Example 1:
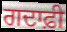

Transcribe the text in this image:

ਗਦਾਫ਼ੀ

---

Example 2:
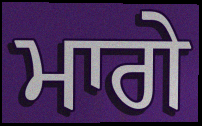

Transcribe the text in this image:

ਮਾਗੇ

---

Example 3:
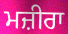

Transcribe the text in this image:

ਮਜ਼ੀਰਾ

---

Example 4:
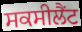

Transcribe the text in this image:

ਸਕਸੀਲੈਂਟ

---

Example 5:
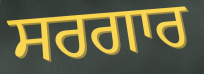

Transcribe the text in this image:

ਸਰਗਾਰ